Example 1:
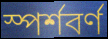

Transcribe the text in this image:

স্পৰ্শবৰ্ণ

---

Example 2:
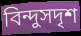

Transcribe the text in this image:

বিন্দুসদৃশ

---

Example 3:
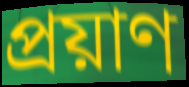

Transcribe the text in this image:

প্ৰয়াণ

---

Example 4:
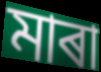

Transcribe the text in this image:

মাৰা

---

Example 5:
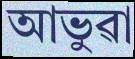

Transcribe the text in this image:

আভুৱা